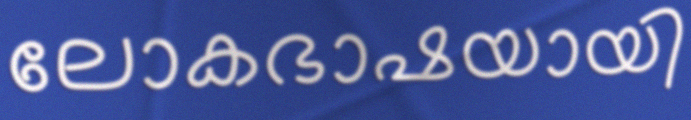
ലോകഭാഷയായി